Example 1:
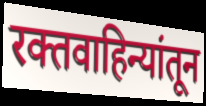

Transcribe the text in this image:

रक्तवाहिन्यांतून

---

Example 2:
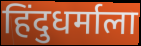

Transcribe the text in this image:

हिंदुधर्माला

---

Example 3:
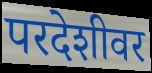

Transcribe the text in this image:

परदेशीवर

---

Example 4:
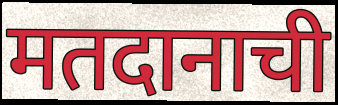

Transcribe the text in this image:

मतदानाची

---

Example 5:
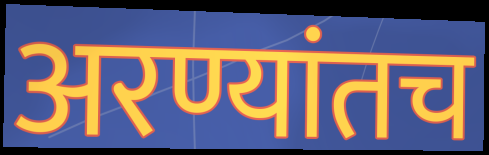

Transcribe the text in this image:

अरण्यांतच